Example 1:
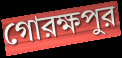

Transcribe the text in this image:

গোরক্ষপুর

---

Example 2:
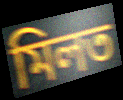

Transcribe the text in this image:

মিলত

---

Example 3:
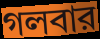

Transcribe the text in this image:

গলবার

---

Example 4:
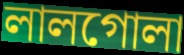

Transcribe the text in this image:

লালগোলা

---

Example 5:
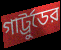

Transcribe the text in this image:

গার্ট্রুডের